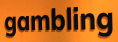
gambling